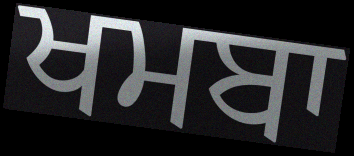
ਖਮਬਾ